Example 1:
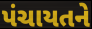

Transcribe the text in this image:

પંચાયતને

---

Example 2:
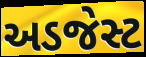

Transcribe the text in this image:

અડજેસ્ટ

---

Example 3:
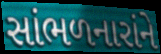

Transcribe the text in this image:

સાંભળનારાંને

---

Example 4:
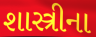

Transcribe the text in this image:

શાસ્ત્રીના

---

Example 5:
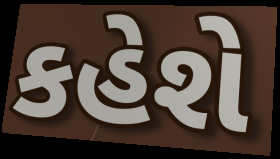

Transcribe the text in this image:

કહેશે